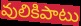
వులికిపాటు